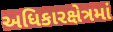
અધિકારક્ષેત્રમાં